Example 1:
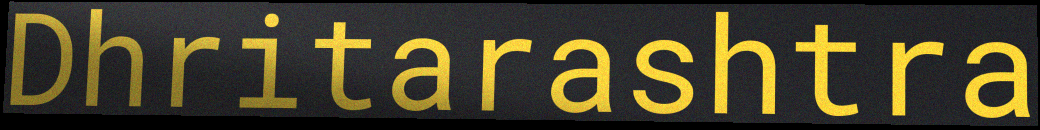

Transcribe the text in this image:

Dhritarashtra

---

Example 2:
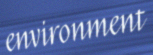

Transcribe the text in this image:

environment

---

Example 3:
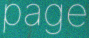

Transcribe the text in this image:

page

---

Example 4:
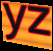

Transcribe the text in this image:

yz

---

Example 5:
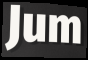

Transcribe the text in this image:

Jum